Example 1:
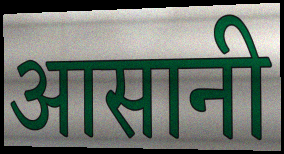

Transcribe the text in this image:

आसानी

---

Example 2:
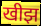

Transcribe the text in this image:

खीझ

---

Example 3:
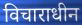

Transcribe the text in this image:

विचाराधीन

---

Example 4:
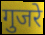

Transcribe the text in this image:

गुजरे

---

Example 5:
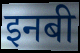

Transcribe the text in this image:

इनबी